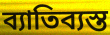
ব্যাতিব্যস্ত